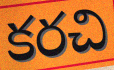
కరచి